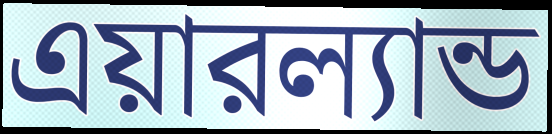
এয়ারল্যান্ড